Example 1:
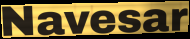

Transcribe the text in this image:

Navesar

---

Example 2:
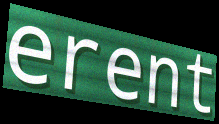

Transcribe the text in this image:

erent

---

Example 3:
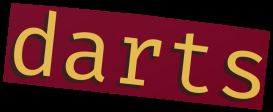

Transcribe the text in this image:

darts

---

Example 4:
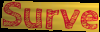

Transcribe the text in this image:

Surve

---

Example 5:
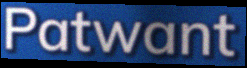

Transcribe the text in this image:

Patwant